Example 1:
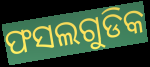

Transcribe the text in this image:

ଫସଲଗୁଡିକ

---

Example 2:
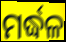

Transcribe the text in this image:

ମର୍ଦ୍ଧଳ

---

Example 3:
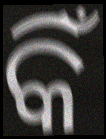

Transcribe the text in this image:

କିଁ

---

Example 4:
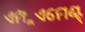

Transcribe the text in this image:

ଏମ୍ପ୍ଲଏମେଣ୍ଟ୍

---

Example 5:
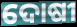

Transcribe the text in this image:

ଦୋଷୀ